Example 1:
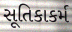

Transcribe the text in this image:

સૂતિકાકર્મ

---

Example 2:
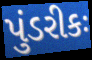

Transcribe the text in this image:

પુંડરીકઃ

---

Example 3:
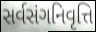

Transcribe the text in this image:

સર્વસંગનિવૃત્તિ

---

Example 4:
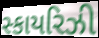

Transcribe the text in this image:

સ્કાયરિઝી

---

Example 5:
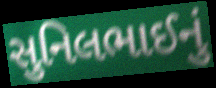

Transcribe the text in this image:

સુનિલભાઈનું